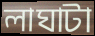
লাঘাটা